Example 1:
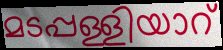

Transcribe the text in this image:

മടപ്പള്ളിയാറ്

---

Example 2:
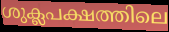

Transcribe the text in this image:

ശുക്ലപക്ഷത്തിലെ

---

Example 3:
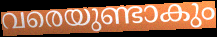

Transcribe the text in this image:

വരെയുണ്ടാകും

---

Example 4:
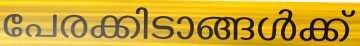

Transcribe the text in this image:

പേരക്കിടാങ്ങൾക്ക്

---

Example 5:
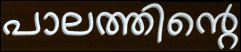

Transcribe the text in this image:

പാലത്തിന്റെ